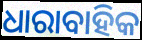
ଧାରାବାହିକ